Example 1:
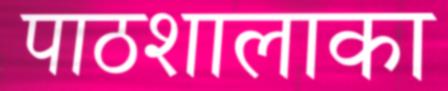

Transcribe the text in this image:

पाठशालाका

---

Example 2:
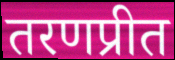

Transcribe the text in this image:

तरणप्रीत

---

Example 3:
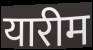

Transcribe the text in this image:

यारीम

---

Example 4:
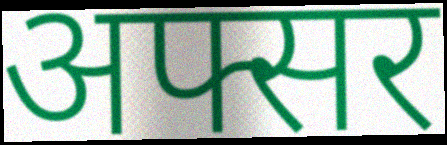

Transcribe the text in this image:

अफ्सर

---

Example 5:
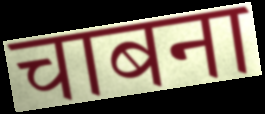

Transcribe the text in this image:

चाबना